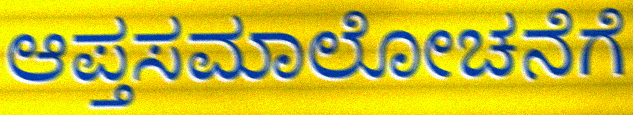
ಆಪ್ತಸಮಾಲೋಚನೆಗೆ